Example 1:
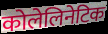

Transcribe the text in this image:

कोलेलिनेटिक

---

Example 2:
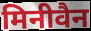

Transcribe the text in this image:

मिनीवैन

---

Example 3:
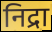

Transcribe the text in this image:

निद्रा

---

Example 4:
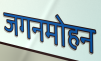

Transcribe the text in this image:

जगनमोहन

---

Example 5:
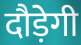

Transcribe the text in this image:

दौड़ेगी